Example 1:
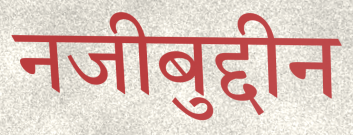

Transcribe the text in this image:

नजीबुद्दीन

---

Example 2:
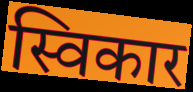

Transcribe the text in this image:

स्विकार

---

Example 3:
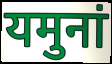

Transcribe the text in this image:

यमुनां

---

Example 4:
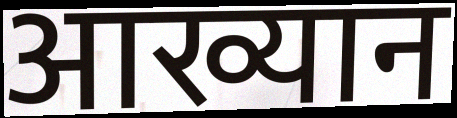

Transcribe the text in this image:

आख्यान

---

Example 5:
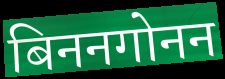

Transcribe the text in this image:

बिननगोनन